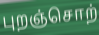
புறஞ்சொற்